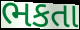
ભકતા